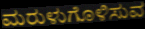
ಮರುಳುಗೊಳಿಸುವ